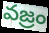
వజ్రం